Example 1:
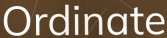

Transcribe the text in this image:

Ordinate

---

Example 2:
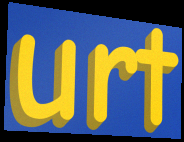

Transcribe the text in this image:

urt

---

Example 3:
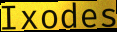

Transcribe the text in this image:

Ixodes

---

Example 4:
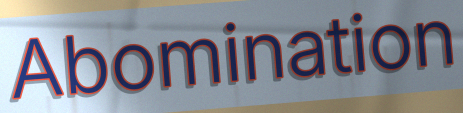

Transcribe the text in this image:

Abomination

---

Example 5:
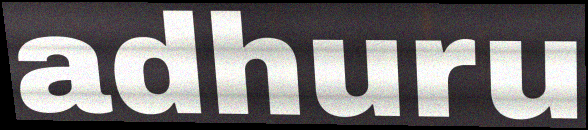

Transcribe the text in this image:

adhuru